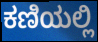
ಕಣಿಯಲ್ಲಿ